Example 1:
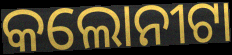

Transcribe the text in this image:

କଲୋନୀଟା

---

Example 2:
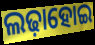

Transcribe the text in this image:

ଲଢ଼ାହୋଇ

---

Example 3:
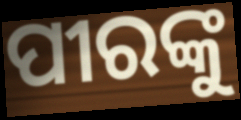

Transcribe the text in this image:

ପୀରଙ୍କୁ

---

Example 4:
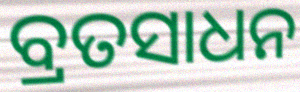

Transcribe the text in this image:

ବ୍ରତସାଧନ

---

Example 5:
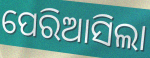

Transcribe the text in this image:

ପେରିଆସିଲା